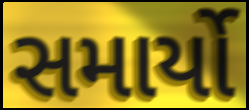
સમાર્યો